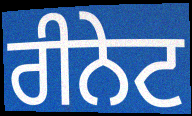
ਰੀਨੇਟ